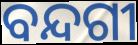
ବନ୍ଦଗୀ